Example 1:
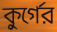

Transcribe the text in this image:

কুর্গের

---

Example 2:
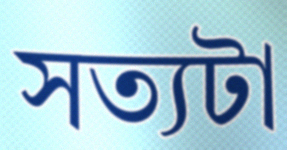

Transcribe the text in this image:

সত্যটা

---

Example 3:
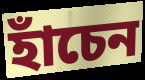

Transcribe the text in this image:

হাঁচেন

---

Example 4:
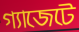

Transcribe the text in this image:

গ্যাজেটে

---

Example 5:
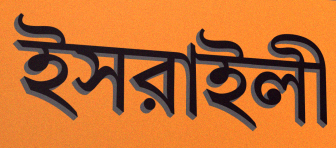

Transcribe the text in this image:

ইসরাইলী